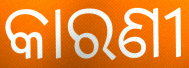
କାରଣୀ